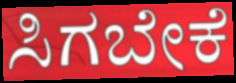
ಸಿಗಬೇಕೆ